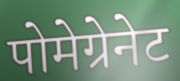
पोमेग्रेनेट